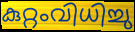
കുറ്റംവിധിച്ചു